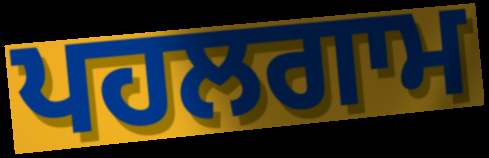
ਪਹਲਗਾਮ